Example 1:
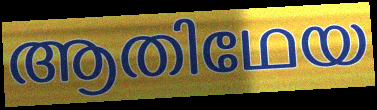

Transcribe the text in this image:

ആതിഥേയ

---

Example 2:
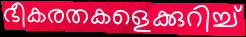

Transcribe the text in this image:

ഭീകരതകളെക്കുറിച്ച്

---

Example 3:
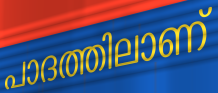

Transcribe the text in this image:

പാദത്തിലാണ്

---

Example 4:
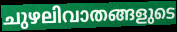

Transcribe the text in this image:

ചുഴലിവാതങ്ങളുടെ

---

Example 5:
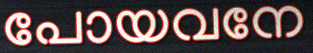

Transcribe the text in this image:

പോയവനേ